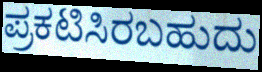
ಪ್ರಕಟಿಸಿರಬಹುದು